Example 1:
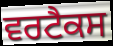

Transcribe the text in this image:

ਵਰਟੈਕਸ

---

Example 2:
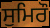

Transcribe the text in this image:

ਸੁਮਿਰੌ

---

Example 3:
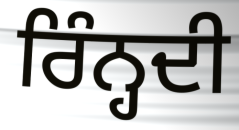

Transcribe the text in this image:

ਰਿੰਨ੍ਹਦੀ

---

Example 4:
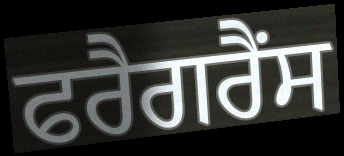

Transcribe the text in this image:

ਫਰੈਗਰੈਂਸ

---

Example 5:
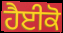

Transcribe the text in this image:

ਹੈਈਕੋ